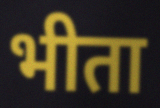
भीता